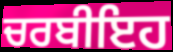
ਚਰਬੀਇਹ